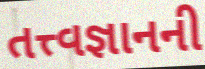
તત્ત્વજ્ઞાનની